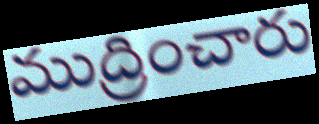
ముద్రించారు